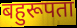
बहुरूपता